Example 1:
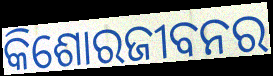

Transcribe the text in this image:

କିଶୋରଜୀବନର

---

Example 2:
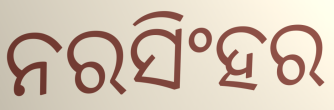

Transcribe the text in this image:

ନରସିଂହର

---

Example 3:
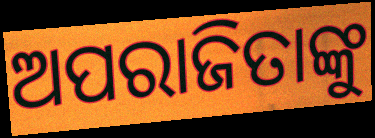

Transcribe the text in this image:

ଅପରାଜିତାଙ୍କୁ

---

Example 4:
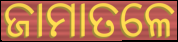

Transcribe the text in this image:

ଜାମାତଳେ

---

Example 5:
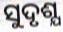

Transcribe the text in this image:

ସୁଦୃଶ୍ଯ